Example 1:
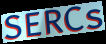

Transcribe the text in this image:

SERCs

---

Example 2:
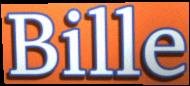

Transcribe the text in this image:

Bille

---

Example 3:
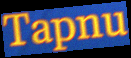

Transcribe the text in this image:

Tapnu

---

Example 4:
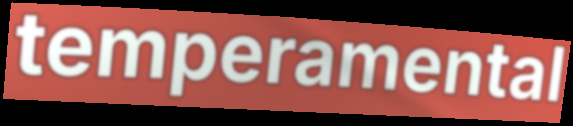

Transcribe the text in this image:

temperamental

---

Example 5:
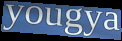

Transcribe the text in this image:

yougya